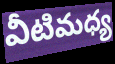
వీటిమధ్య